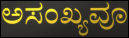
ಅಸಂಖ್ಯವೂ